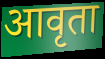
आवृता